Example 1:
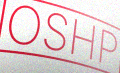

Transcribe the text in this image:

OSHP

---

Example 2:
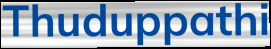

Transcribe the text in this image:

Thuduppathi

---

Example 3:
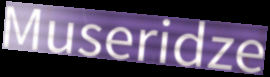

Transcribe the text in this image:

Museridze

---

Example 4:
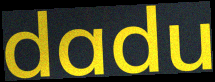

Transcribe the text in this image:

dadu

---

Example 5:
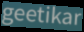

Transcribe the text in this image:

geetikar